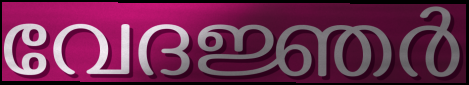
വേദജ്ഞർ